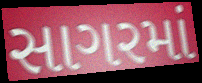
સાગરમાં